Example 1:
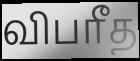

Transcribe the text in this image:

விபரீத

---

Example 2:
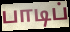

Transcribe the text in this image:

பாடிப்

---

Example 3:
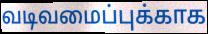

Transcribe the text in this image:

வடிவமைப்புக்காக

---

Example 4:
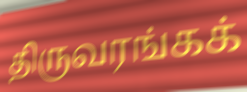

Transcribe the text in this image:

திருவரங்கக்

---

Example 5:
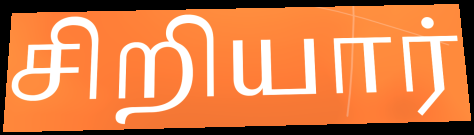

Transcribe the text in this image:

சிறியார்